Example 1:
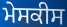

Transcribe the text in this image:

ਮੇਸਕੀਸ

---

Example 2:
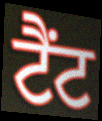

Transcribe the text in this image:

ਟੈਂਟ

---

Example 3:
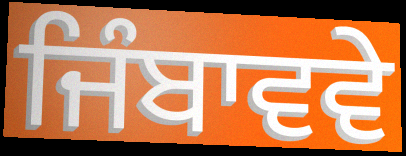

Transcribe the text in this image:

ਜਿੰਬਾਵਵੇ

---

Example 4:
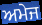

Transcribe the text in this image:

ਅਮੇਜ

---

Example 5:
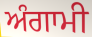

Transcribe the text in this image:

ਅੰਗਾਮੀ